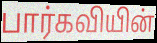
பார்கவியின்